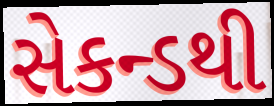
સેકન્ડથી